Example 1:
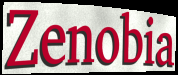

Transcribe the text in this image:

Zenobia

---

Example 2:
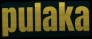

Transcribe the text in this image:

pulaka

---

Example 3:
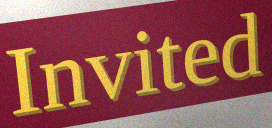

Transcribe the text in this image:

Invited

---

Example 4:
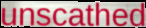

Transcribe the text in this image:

unscathed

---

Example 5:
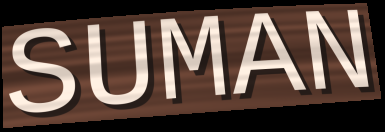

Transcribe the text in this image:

SUMAN